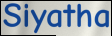
Siyatha